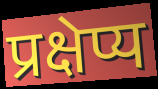
प्रक्षेप्य